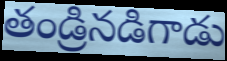
తండ్రినడిగాడు